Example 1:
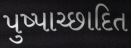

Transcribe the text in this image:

પુષ્પાચ્છાદિત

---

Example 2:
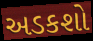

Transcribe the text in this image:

અડકશો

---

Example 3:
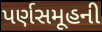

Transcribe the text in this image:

પર્ણસમૂહની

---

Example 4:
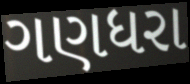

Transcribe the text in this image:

ગણધરા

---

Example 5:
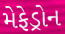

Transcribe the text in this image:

મેફેડ્રોન